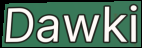
Dawki